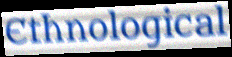
Ethnological